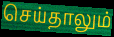
செய்தாலும்